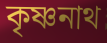
কৃষ্ণনাথ